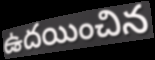
ఉదయించిన